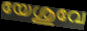
യേശുവേ